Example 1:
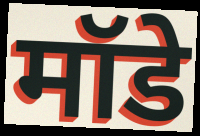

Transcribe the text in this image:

मॉडे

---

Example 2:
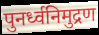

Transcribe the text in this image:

पुनर्ध्वनिमुद्रण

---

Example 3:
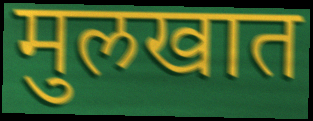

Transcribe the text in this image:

मुलखात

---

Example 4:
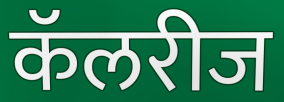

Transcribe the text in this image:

कॅलरीज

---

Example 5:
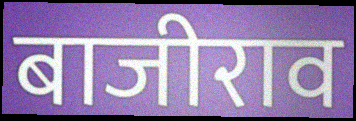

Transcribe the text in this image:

बाजीराव